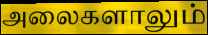
அலைகளாலும்